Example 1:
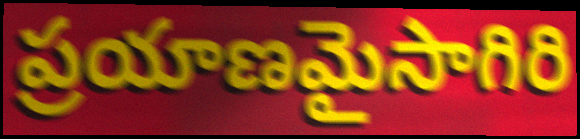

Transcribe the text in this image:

ప్రయాణమైసాగిరి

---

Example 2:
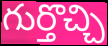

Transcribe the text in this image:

గుర్తొచ్చి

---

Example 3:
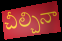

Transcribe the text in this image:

చీల్చినా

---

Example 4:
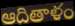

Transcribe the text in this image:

ఆదితాళం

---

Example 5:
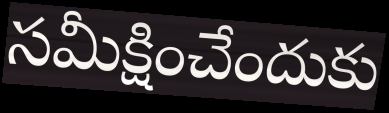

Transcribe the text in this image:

సమీక్షించేందుకు